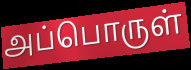
அப்பொருள்